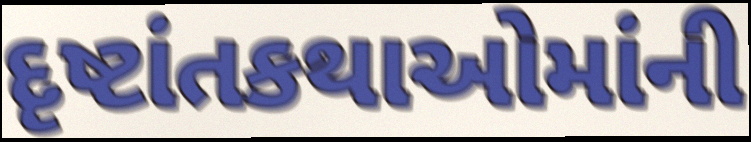
દૃષ્ટાંતકથાઓમાંની